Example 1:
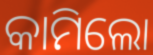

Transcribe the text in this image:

କାମିଲୋ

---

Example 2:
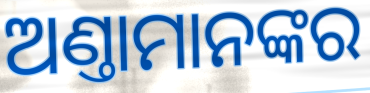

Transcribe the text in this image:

ଅଣ୍ତାମାନଙ୍କର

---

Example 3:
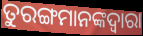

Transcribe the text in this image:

ତୁରଙ୍ଗମାନଙ୍କଦ୍ୱାରା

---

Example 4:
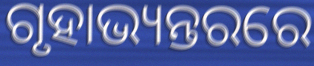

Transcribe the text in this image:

ଗୃହାଭ୍ୟନ୍ତରରେ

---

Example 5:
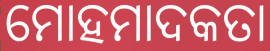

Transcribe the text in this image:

ମୋହମାଦକତା